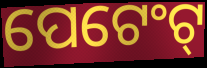
ପେଟେଂଟ୍